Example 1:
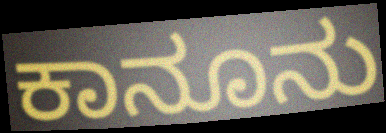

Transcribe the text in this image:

ಕಾನೂನು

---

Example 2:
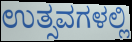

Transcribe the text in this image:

ಉತ್ಸವಗಳಲ್ಲಿ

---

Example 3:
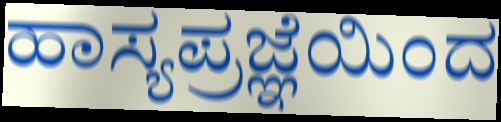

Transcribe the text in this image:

ಹಾಸ್ಯಪ್ರಜ್ಞೆಯಿಂದ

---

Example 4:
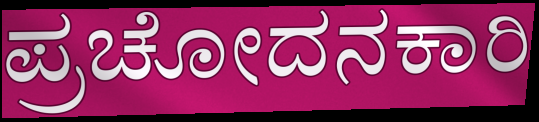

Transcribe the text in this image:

ಪ್ರಚೋದನಕಾರಿ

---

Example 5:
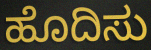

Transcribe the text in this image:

ಹೊದಿಸು